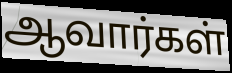
ஆவார்கள்